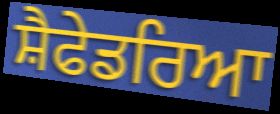
ਸ਼ੈਫੇਡਰਿਆ